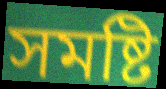
সমষ্টি